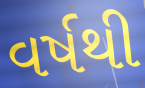
વર્ષથી